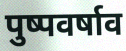
पुष्पवर्षाव